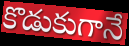
కొడుకుగానే